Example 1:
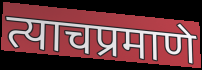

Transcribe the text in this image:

त्याचप्रमाणे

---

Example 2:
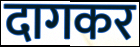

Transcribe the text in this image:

दागकर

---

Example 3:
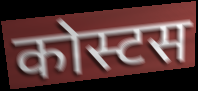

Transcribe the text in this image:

कोस्टस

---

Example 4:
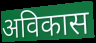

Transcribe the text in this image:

अविकास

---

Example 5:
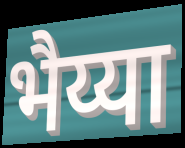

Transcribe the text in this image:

भैय्या